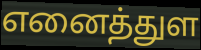
எனைத்துள